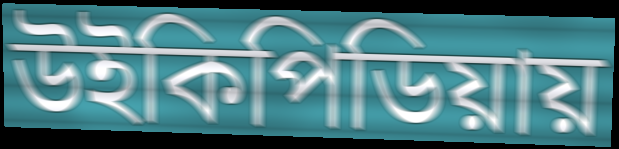
উইকিপিডিয়ায়